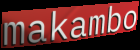
makambo